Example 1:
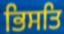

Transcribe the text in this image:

ਭਿਸਤਿ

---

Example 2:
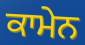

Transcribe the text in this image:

ਕਾਮੇਨ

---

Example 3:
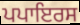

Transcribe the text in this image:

ਪਪਾਇਰਸ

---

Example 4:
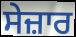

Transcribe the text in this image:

ਸੇਜ਼ਾਰ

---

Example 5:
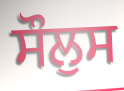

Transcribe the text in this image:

ਸੌਲੁਸ